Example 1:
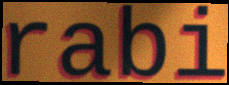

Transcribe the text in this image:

rabi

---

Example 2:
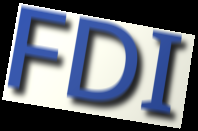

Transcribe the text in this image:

FDI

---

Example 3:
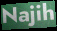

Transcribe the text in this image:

Najih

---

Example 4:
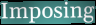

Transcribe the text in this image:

Imposing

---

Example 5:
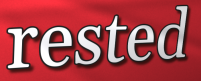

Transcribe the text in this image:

rested